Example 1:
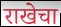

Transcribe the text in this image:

राखेचा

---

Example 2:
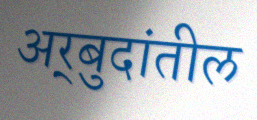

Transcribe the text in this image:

अर्बुदांतील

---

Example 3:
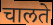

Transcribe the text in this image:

चालते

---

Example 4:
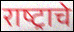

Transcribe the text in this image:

राष्ट्राचे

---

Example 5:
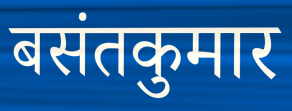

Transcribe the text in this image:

बसंतकुमार